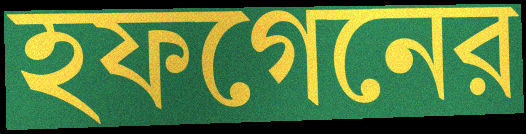
হফগেনের